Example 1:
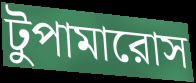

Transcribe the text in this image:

টুপামারোস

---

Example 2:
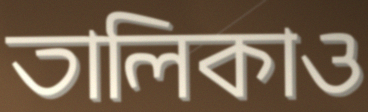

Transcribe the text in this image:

তালিকাও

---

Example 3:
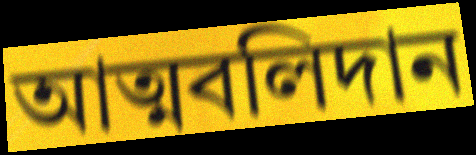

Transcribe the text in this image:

আত্মবলিদান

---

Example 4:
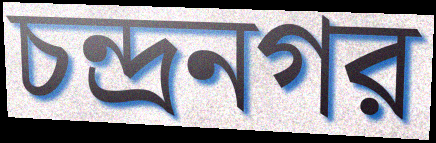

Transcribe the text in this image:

চন্দ্রনগর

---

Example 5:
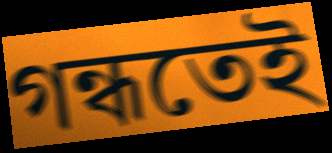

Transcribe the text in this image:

গন্ধতেই